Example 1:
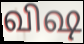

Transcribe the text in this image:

விஷ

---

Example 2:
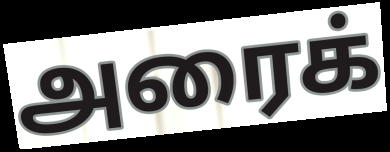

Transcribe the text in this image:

அரைக்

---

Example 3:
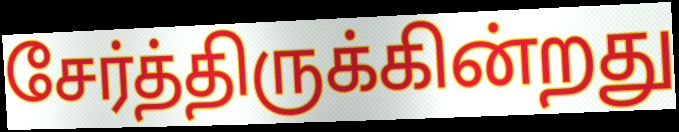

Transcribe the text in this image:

சேர்த்திருக்கின்றது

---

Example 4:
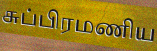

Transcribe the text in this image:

சுப்பிரமணிய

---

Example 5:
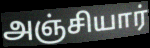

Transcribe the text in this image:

அஞ்சியார்